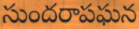
సుందరాపఘన